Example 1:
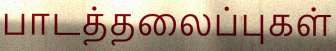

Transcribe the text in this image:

பாடத்தலைப்புகள்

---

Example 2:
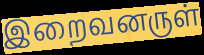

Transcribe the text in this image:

இறைவனருள்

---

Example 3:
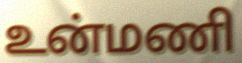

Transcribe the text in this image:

உன்மணி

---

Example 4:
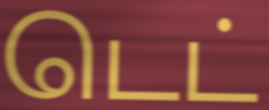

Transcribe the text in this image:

டெட்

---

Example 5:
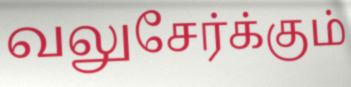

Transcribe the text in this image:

வலுசேர்க்கும்